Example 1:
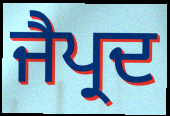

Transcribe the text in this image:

ਜੈਪ੍ਰਦ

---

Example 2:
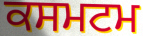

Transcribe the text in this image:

ਕਸਮਟਮ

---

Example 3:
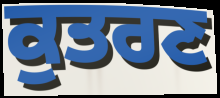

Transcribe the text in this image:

ਕੁਤਰਣ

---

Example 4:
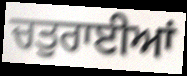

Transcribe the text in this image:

ਚਤੁਰਾਈਆਂ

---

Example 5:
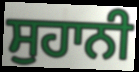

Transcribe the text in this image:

ਸੁਹਾਨੀ